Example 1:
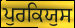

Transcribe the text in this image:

ਪੁਰਕਿਯੁਸ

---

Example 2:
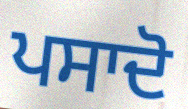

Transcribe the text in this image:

ਪਸਾਦੋ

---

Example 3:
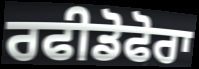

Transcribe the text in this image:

ਰਫੀਡੋਫੋਰਾ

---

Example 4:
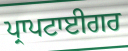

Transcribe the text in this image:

ਪ੍ਰਾਪਟਾਈਗਰ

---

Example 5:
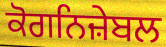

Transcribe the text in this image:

ਕੋਗਨਿਜ਼ੇਬਲ